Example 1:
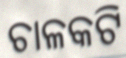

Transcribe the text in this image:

ଚାଳକଟି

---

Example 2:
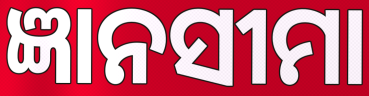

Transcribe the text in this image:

ଜ୍ଞାନସୀମା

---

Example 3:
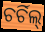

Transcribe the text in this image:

ଚର୍ଚିଲ୍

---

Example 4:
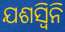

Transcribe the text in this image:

ଯଶସ୍ୱିନି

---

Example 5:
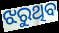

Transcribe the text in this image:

ଝରୁଥିବ